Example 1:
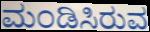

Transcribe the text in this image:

ಮಂಡಿಸಿರುವ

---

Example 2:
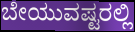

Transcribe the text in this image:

ಬೇಯುವಷ್ಟರಲ್ಲಿ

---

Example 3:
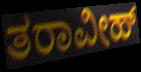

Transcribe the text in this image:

ತರಾವೀಹ್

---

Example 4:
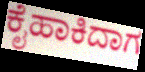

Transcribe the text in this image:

ಕೈಹಾಕಿದಾಗ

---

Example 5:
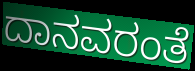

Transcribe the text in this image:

ದಾನವರಂತೆ